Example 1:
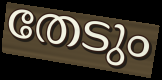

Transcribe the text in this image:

തേടും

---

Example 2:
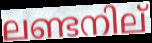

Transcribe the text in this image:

ലണ്ടനില്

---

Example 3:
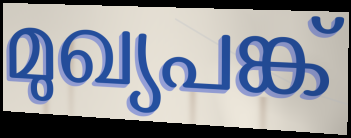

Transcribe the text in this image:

മുഖ്യപങ്ക്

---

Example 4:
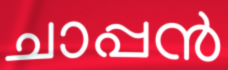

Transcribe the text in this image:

ചാപ്പൻ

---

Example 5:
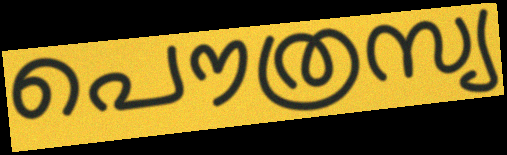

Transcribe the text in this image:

പൌത്രസ്യ